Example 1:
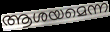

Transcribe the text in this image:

ആശയമെന്ന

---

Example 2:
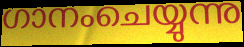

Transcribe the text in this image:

ഗാനംചെയ്യുന്നു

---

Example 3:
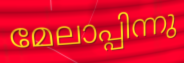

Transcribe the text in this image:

മേലാപ്പിന്നു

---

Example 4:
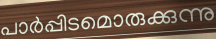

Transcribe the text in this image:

പാർപ്പിടമൊരുക്കുന്നു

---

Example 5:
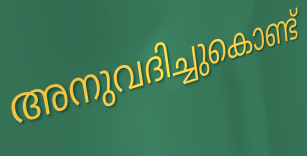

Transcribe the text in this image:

അനുവദിച്ചുകൊണ്ട്